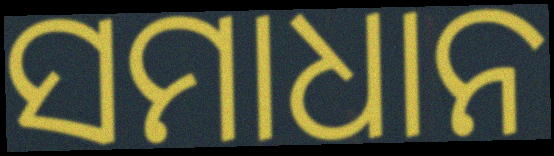
ସମାଧାନ